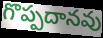
గొప్పదానవు